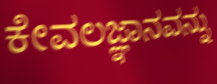
ಕೇವಲಜ್ಞಾನವನ್ನು